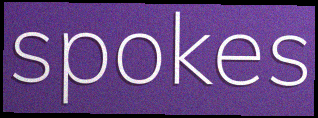
spokes